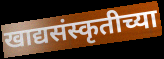
खाद्यसंस्कृतीच्या